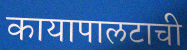
कायापालटाची